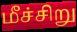
மீச்சிறு